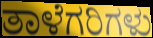
ತಾಳೆಗರಿಗಳು